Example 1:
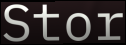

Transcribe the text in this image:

Stor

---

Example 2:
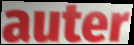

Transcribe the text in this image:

auter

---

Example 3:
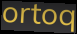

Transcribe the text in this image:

ortoq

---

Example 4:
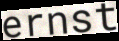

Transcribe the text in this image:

ernst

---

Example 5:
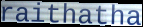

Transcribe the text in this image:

raithatha